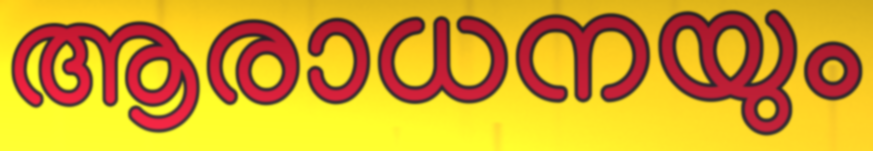
ആരാധനയും